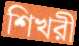
শিখরী